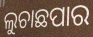
ଲୁଚାଛପାର